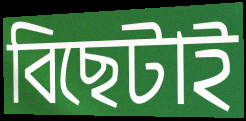
বিছেটাই